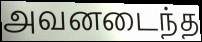
அவனடைந்த